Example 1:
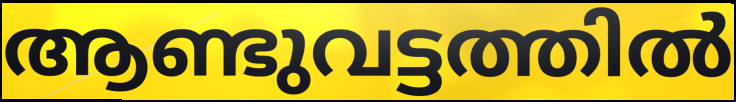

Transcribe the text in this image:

ആണ്ടുവട്ടത്തിൽ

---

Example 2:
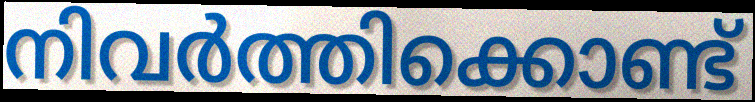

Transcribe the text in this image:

നിവർത്തിക്കൊണ്ട്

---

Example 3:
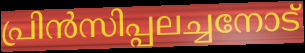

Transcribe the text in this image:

പ്രിൻസിപ്പലച്ചനോട്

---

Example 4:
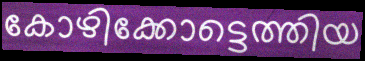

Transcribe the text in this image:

കോഴിക്കോട്ടെത്തിയ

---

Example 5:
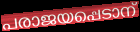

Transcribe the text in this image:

പരാജയപ്പെടാന്